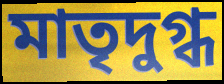
মাতৃদুগ্ধ